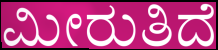
ಮೀರುತಿದೆ